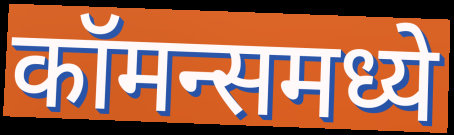
कॉमन्समध्ये